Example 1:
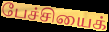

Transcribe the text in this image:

பேச்சியைக்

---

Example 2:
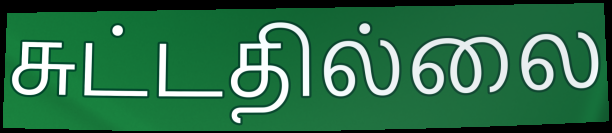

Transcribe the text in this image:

சுட்டதில்லை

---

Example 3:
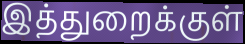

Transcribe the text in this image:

இத்துறைக்குள்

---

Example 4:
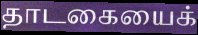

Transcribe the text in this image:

தாடகையைக்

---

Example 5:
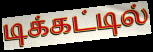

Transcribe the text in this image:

டிக்கட்டில்